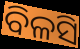
ବିଳସି